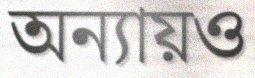
অন্যায়ও